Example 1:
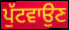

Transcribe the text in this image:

ਪੁੱਟਵਾਉਣ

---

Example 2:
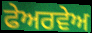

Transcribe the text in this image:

ਫੇਅਰਵੇਅ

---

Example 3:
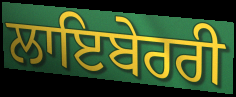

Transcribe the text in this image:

ਲਾਇਬੇਰਰੀ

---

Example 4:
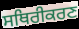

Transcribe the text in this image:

ਸਥਿਰੀਕਰਣ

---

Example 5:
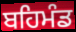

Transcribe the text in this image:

ਬਹਿਮੰਡ